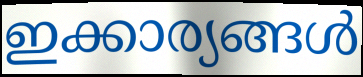
ഇക്കാര്യങ്ങൾ